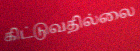
கிட்டுவதில்லை